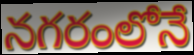
నగరంలోనే